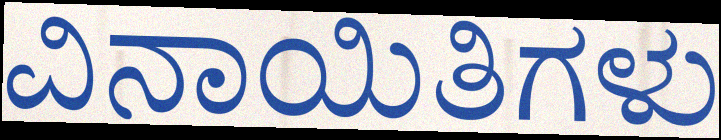
ವಿನಾಯಿತಿಗಳು